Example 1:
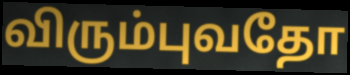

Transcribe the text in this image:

விரும்புவதோ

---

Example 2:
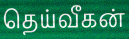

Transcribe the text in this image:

தெய்வீகன்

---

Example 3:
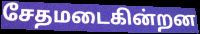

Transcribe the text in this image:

சேதமடைகின்றன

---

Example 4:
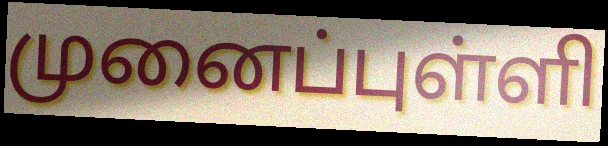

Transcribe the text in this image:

முனைப்புள்ளி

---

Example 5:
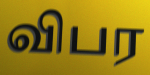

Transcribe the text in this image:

விபர